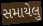
સમાયેલુ